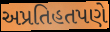
અપ્રતિહતપણે